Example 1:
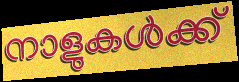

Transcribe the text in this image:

നാളുകൾക്ക്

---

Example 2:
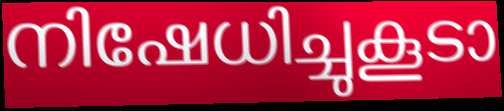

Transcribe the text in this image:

നിഷേധിച്ചുകൂടാ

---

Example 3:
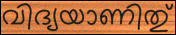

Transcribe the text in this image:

വിദ്യയാണിതു്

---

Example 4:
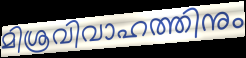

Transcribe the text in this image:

മിശ്രവിവാഹത്തിനും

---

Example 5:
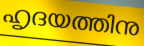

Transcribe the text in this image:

ഹൃദയത്തിനു